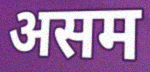
असम